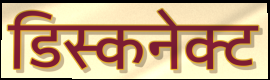
डिस्कनेक्ट